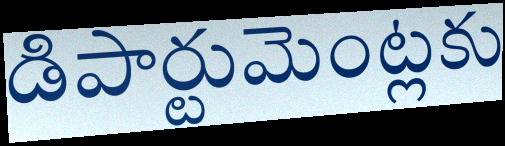
డిపార్టుమెంట్లకు